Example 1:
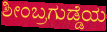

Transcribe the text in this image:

ಶೀಂಬ್ರಗುಡ್ಡೆಯ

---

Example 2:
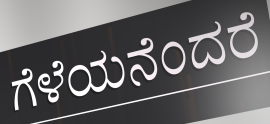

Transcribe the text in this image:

ಗೆಳೆಯನೆಂದರೆ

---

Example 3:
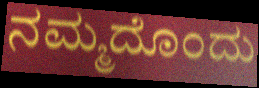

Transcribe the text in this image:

ನಮ್ಮದೊಂದು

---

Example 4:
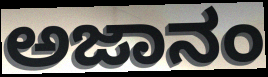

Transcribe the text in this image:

ಅಜಾನಂ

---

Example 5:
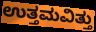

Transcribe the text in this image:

ಉತ್ತಮವಿತ್ತು